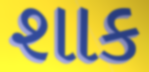
શાક